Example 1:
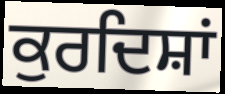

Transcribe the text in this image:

ਕੁਰਦਿਸ਼ਾਂ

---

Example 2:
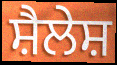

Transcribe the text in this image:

ਸ਼ੈਲੇਸ਼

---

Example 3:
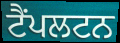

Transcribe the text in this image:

ਟੈਂਪਲਟਨ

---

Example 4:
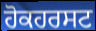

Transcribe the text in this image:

ਹੋਕਹਰਸਟ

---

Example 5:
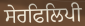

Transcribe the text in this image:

ਸੇਰਫਿਲਿਪੀ